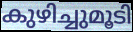
കുഴിച്ചുമൂടി